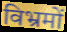
विभ्रमों